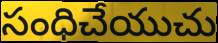
సంధిచేయుచు